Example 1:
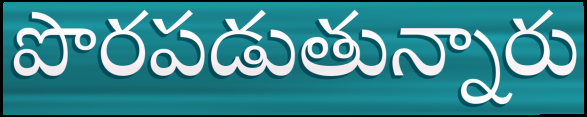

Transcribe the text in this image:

పొరపడుతున్నారు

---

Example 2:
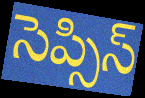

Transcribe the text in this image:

సెప్సిస్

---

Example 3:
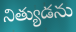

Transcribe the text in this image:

నిత్యుడను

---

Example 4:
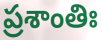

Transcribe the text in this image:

ప్రశాంతిః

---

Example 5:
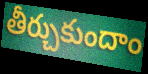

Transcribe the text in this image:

తీర్చుకుందాం